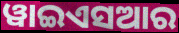
ୱାଇଏସଆର